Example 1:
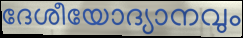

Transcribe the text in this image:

ദേശീയോദ്യാനവും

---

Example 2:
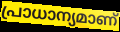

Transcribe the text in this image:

പ്രാധാന്യമാണ്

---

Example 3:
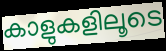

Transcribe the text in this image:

കാളുകളിലൂടെ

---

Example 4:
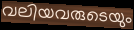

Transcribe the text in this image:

വലിയവരുടെയും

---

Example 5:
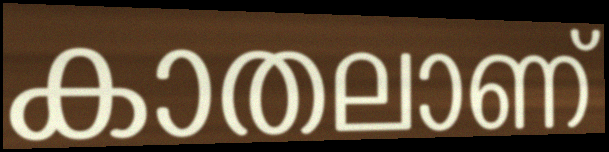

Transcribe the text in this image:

കാതലാണ്